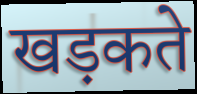
खड़कते